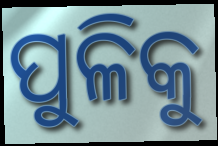
ପୁଳିକୁ